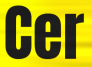
Cer